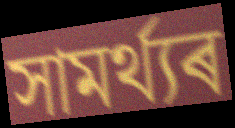
সামৰ্থ্যৰ